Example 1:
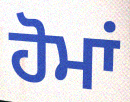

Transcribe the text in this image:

ਹੋਮਾਂ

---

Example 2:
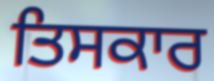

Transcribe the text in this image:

ਤਿਸਕਾਰ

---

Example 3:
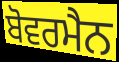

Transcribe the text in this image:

ਬੋਵਰਮੈਨ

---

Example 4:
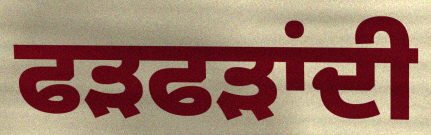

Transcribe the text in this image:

ਫੜਫੜਾਂਦੀ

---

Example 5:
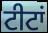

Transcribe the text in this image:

ਟੀਟਾਂ